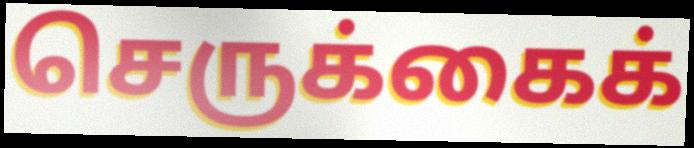
செருக்கைக்